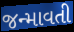
જન્માવતી